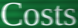
Costs